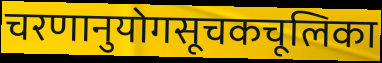
चरणानुयोगसूचकचूलिका